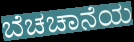
ಬೆಚಚಾನೆಯ